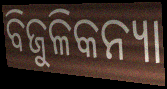
ବିଜୁଳିକନ୍ୟା